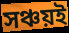
সঞ্চয়ই